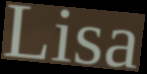
Lisa